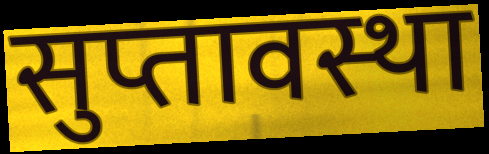
सुप्तावस्था